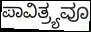
ಪಾವಿತ್ರ್ಯವೂ